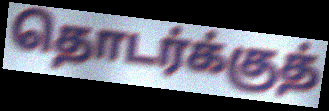
தொடர்க்குத்